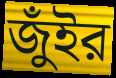
জুঁইর